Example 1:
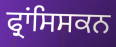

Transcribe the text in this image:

ਫ੍ਰਾਂਸਿਸਕਨ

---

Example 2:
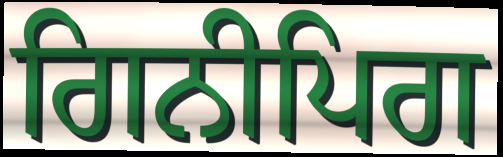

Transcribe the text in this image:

ਗਿਨੀਪਿਗ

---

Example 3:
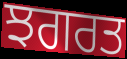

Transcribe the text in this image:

ਝਗਰਤ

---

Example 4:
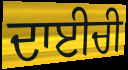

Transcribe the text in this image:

ਦਾਈਚੀ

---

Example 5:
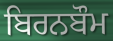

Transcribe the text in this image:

ਬਿਰਨਬੌਮ